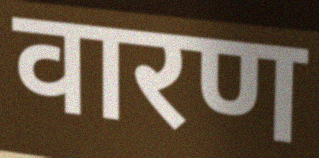
वारण